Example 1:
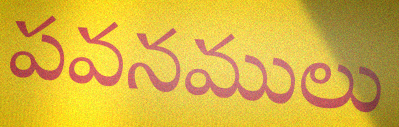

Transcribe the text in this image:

పవనములు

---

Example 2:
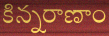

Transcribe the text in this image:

కిన్నరాణాం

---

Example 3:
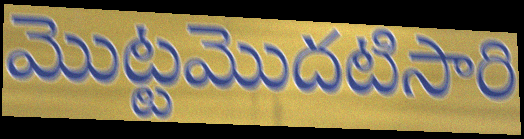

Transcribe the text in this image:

మొట్టమొదటిసారి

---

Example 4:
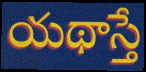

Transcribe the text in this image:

యథాస్తే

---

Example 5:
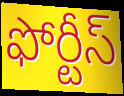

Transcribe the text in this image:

ఫోర్టీస్